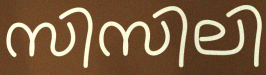
സിസിലി